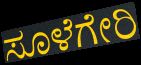
ಸೂಳೆಗೇರಿ